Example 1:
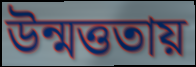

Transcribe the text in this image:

উন্মত্ততায়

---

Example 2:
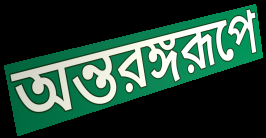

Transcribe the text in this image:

অন্তরঙ্গরূপে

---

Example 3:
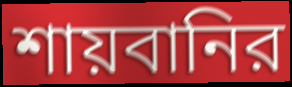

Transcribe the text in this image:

শায়বানির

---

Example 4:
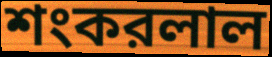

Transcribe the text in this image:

শংকরলাল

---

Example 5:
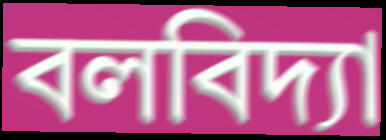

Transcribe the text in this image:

বলবিদ্যা